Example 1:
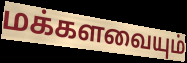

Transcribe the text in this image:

மக்களவையும்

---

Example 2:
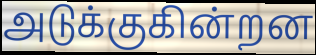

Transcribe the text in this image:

அடுக்குகின்றன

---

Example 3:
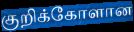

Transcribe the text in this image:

குறிக்கோளான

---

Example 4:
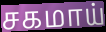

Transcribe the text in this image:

சகமாய்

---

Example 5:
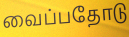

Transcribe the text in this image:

வைப்பதோடு